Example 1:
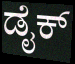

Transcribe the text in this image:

ಡೈಕ್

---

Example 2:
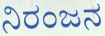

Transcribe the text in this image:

ನಿರಂಜನ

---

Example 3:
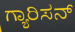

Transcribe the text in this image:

ಗ್ಯಾರಿಸನ್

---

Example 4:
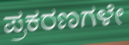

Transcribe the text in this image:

ಪ್ರಕರಣಗಳೇ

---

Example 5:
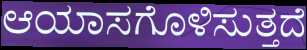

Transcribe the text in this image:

ಆಯಾಸಗೊಳಿಸುತ್ತದೆ